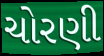
ચોરણી